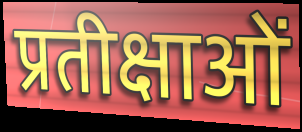
प्रतीक्षाओं